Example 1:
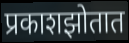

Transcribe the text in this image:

प्रकाशझोतात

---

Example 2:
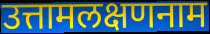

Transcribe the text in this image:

उत्तामलक्षणनाम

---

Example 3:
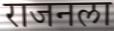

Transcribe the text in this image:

राजनला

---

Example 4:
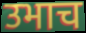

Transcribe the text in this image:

उभाच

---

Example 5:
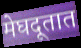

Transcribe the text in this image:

मेघदूतात